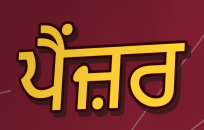
ਪੈਂਜ਼ਰ